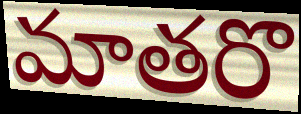
మాతరొ